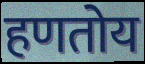
हणतोय